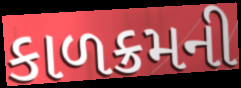
કાળક્રમની